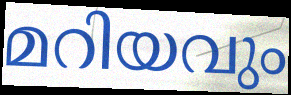
മറിയവും